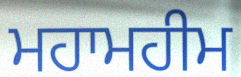
ਮਹਾਮਹੀਮ